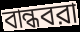
বান্ধবরা